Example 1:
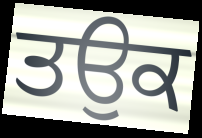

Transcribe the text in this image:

ਤਉਕ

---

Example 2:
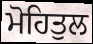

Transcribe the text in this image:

ਮੋਹਿਤੁਲ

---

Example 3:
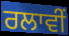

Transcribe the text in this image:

ਰਲਾਵੀਂ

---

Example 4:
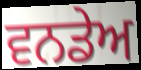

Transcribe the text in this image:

ਵਨਡੇਅ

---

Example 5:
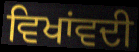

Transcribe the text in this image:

ਵਿਖਾਂਵਦੀ